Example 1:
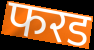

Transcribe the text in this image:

फरड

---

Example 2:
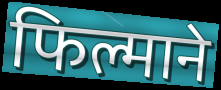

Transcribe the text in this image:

फिल्माने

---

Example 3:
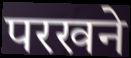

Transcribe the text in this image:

परखने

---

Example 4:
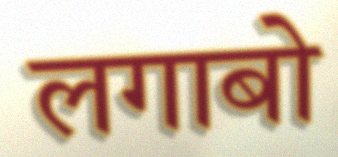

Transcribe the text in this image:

लगाबो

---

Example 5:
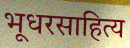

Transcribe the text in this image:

भूधरसाहित्य